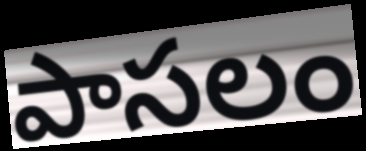
పాసలం